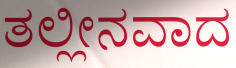
ತಲ್ಲೀನವಾದ